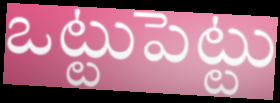
ఒట్టుపెట్టు